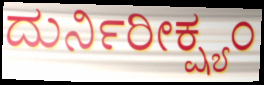
ದುರ್ನಿರೀಕ್ಷ್ಯಂ